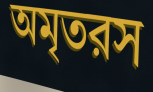
অমৃতরস